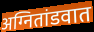
अग्नितांडवात